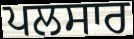
ਪਲਸਾਰ